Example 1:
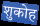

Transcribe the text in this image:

शुकोह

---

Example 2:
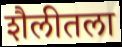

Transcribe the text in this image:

शैलीतला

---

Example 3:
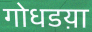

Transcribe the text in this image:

गोधडय़ा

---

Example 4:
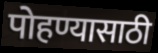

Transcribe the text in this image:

पोहण्यासाठी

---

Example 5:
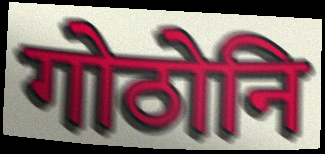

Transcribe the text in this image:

गोठोनि